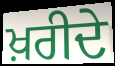
ਖ਼ਰੀਦੇ